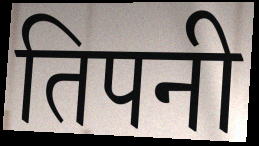
तिपनी